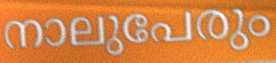
നാലുപേരും